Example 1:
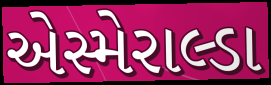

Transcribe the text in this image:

એસ્મેરાલ્ડા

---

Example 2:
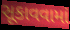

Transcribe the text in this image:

સૂકાવવામાં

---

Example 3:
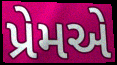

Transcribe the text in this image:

પ્રેમએ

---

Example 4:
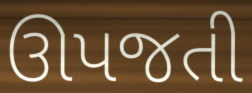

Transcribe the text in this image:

ઊપજતી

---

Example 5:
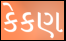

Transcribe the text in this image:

કેકણ